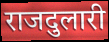
राजदुलारी